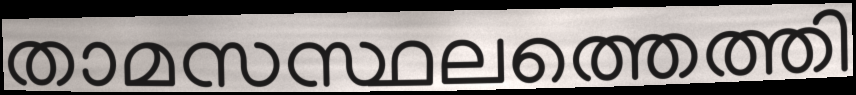
താമസസ്ഥലത്തെത്തി